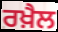
ਰਖ਼ੈਲ